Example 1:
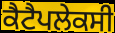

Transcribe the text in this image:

ਕੈਟੈਪਲੇਕਸੀ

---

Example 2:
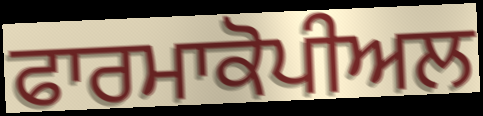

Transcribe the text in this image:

ਫਾਰਮਾਕੋਪੀਅਲ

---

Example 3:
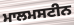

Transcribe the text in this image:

ਮਾਲਮਸਟੀਨ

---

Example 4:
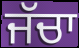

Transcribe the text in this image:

ਜੱਚਾ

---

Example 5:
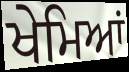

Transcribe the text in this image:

ਖੇਮਿਆਂ